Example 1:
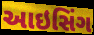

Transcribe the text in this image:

આઇસિંગ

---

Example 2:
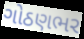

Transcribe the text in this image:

ગોઠણભર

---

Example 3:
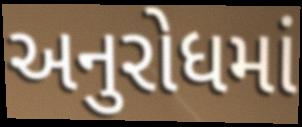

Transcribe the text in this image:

અનુરોધમાં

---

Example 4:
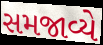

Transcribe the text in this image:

સમજાવ્યે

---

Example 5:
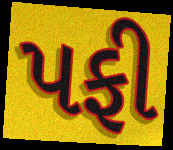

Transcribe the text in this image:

પફી